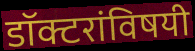
डॉक्टरांविषयी